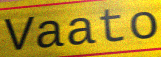
Vaato